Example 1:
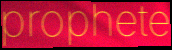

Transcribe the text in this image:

prophete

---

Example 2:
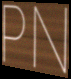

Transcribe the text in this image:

PN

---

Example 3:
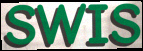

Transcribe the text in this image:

SWIS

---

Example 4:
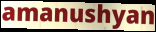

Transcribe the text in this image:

amanushyan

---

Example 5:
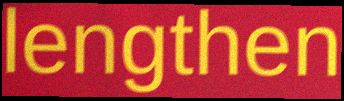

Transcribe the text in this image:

lengthen